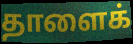
தாளைக்